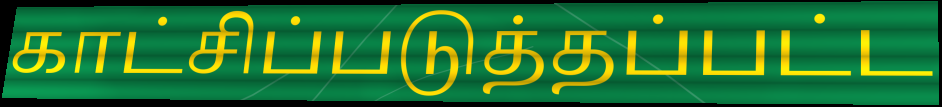
காட்சிப்படுத்தப்பட்ட